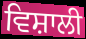
ਵਿਸ਼ਾਲੀ